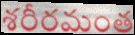
శరీరమంత